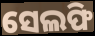
ସେଲଫି